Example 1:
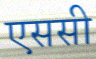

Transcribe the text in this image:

एससी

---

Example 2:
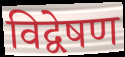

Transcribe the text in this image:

विद्वेषण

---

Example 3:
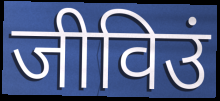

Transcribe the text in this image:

जीविउं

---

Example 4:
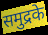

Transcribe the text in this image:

समुद्रके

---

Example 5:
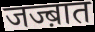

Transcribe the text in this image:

जज्ब़ात